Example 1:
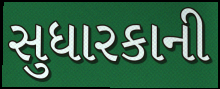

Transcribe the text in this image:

સુધારકાની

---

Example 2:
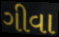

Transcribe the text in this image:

ગીવા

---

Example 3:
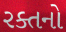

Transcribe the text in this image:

રક્તનો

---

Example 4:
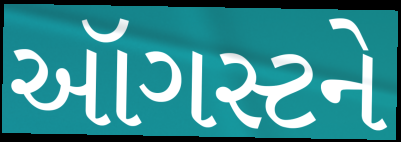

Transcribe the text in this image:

ઑગસ્ટને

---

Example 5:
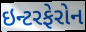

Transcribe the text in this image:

ઇન્ટરફેરોન